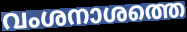
വംശനാശത്തെ